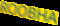
ROOBHA